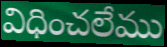
విధించలేము